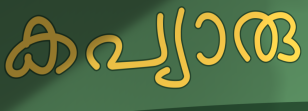
കപ്യാരു